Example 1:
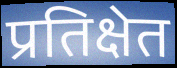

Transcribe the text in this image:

प्रतिक्षेत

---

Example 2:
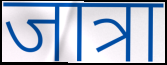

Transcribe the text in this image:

जात्रा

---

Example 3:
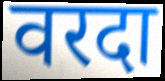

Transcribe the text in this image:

वरदा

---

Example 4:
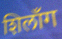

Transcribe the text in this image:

शिलाँग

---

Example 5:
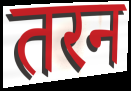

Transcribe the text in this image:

तरन